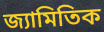
জ্যামিতিক